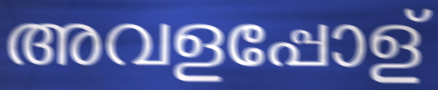
അവളപ്പോള്